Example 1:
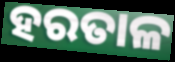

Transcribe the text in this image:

ହରତାଳ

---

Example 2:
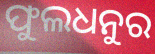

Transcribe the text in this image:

ଫୁଲଧନୁର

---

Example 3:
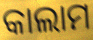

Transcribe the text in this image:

କାଲାମ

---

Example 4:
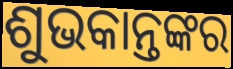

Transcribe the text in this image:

ଶୁଭକାନ୍ତଙ୍କର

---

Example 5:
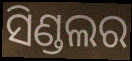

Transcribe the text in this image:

ସିଣ୍ଡଲର